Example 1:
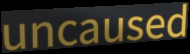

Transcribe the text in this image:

uncaused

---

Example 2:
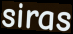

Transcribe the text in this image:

siras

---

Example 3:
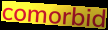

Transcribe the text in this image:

comorbid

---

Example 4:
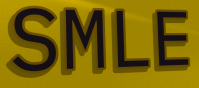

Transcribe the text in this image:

SMLE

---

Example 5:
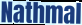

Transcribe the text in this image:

Nathmal